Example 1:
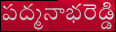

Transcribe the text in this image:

పద్మనాభరెడ్డి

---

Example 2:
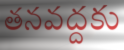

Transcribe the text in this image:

తనవద్దకు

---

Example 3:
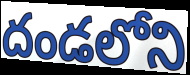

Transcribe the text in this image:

దండలోని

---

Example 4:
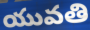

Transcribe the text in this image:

యువతి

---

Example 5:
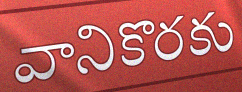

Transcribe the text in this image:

వానికొరకు